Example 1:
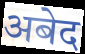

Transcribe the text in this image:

अबेद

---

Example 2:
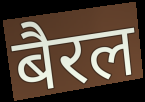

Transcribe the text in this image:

बैरल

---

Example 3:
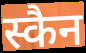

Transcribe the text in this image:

स्कैन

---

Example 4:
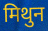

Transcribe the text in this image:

मिथुन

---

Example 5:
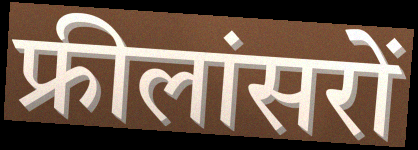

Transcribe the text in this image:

फ्रीलांसरों